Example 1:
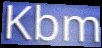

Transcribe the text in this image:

Kbm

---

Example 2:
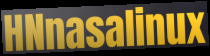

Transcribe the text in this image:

HNnasalinux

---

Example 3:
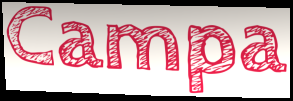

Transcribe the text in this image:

Campa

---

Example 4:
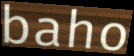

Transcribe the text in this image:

baho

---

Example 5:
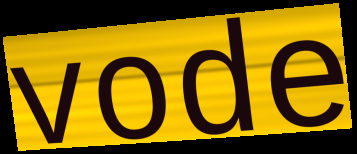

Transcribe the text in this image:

vode